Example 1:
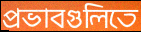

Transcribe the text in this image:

প্রভাবগুলিতে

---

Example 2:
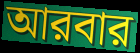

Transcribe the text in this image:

আরবার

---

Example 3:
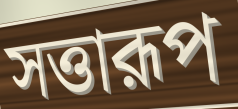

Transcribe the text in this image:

সত্তারূপ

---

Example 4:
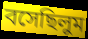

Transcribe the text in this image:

বসেছিলুম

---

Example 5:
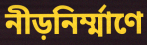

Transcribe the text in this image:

নীড়নির্ম্মাণে